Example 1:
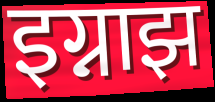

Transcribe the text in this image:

इग्नाझ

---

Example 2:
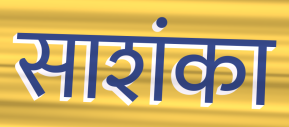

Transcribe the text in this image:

साशंका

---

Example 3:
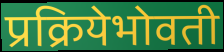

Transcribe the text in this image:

प्रक्रियेभोवती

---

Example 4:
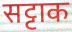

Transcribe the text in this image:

सट्टाक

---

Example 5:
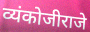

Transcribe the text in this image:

व्यंकोजीराजे